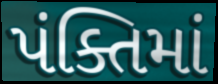
પંક્તિમાં